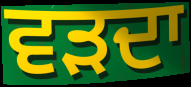
ਵੜਦਾ